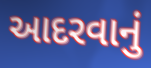
આદરવાનું